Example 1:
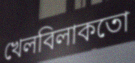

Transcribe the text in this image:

খেলবিলাকতো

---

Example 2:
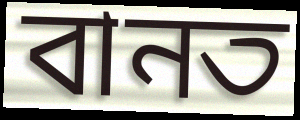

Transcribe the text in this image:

বানত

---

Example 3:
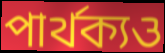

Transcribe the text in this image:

পাৰ্থক্যও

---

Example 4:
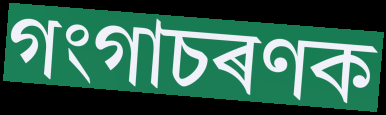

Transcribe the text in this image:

গংগাচৰণক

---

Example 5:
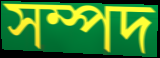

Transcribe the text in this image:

সম্পদ